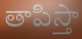
తాపిస్తా